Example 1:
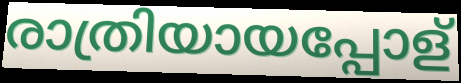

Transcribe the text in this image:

രാത്രിയായപ്പോള്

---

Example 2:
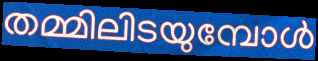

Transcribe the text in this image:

തമ്മിലിടയുമ്പോൾ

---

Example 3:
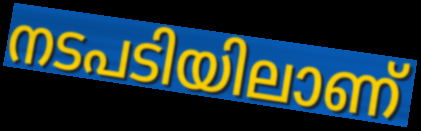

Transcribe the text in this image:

നടപടിയിലാണ്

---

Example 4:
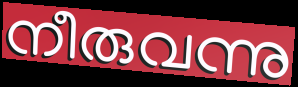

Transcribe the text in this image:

നീരുവന്നു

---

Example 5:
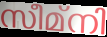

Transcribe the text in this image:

സീമ്നി